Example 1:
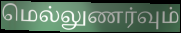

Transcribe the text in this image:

மெல்லுணர்வும்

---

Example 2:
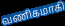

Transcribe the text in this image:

வணிகமாகி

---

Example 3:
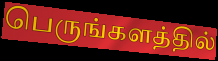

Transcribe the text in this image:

பெருங்களத்தில்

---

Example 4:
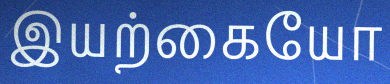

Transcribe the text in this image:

இயற்கையோ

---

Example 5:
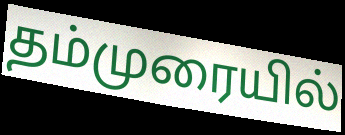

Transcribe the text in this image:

தம்முரையில்